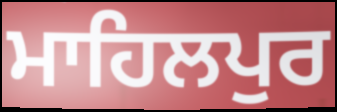
ਮਾਹਿਲਪੁਰ